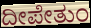
ದೀಪೇತುಂ